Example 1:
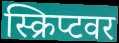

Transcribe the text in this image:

स्क्रिप्टवर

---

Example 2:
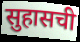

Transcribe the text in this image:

सुहासची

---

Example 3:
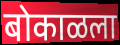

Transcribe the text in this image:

बोकाळला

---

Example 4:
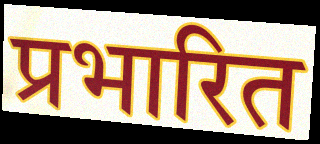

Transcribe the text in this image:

प्रभारित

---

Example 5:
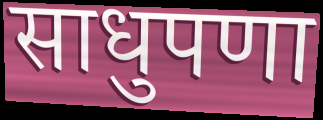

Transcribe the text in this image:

साधुपणा